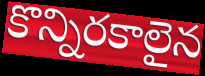
కొన్నిరకాలైన